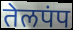
तेलपंप